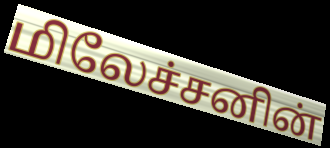
மிலேச்சனின்